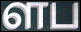
ளப